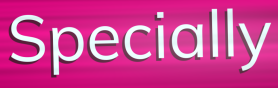
Specially